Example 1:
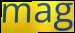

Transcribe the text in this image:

mag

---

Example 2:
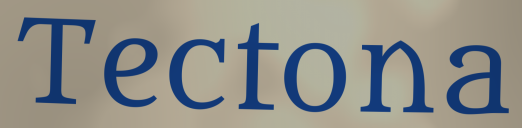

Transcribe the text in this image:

Tectona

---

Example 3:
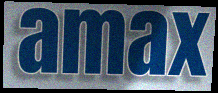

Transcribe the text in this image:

amax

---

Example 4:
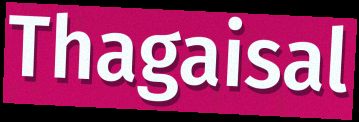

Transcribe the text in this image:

Thagaisal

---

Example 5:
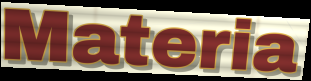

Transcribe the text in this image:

Materia